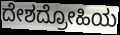
ದೇಶದ್ರೋಹಿಯ